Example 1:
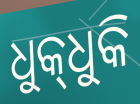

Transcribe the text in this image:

ଧୁକ୍‌ଧୁକି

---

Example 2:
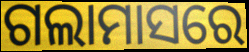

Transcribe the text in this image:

ଗଲାମାସରେ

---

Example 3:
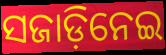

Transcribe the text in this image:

ସଜାଡ଼ିନେଇ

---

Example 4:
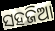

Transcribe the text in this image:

ସହଜିଆ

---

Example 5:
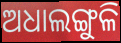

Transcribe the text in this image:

ଅଧାଲଙ୍ଗୁଳି